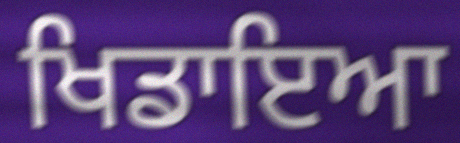
ਖਿਡਾਇਆ